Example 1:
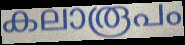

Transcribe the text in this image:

കലാരൂപം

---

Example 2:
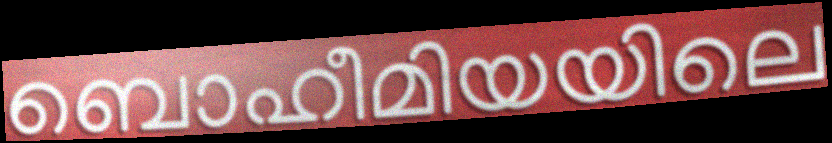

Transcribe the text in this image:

ബൊഹീമിയയിലെ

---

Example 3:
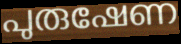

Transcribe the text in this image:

പുരുഷേണ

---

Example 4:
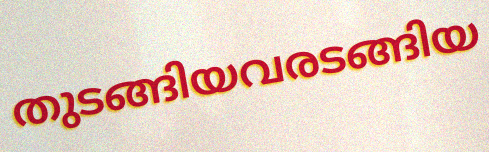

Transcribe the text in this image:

തുടങ്ങിയവരടങ്ങിയ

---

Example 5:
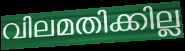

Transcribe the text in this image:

വിലമതിക്കില്ല